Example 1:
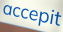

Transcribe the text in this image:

accepit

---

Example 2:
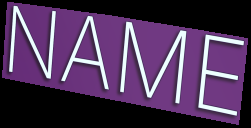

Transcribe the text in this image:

NAME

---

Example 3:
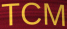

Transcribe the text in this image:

TCM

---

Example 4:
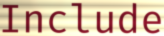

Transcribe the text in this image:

Include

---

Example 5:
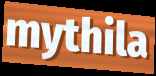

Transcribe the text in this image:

mythila